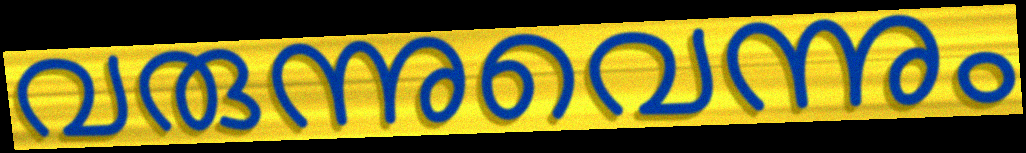
വരുന്നുവെന്നും